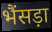
भैंसड़ा